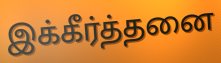
இக்கீர்த்தனை